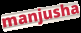
manjusha